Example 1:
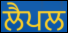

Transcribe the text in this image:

ਲੈਪਲ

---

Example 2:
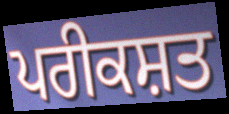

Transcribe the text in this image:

ਪਰੀਕਸ਼ਤ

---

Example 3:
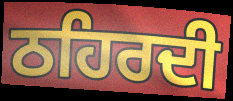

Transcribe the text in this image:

ਠਹਿਰਦੀ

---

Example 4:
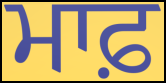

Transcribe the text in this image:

ਮਾਫ਼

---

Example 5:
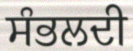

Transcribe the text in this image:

ਸੰਭਲਦੀ